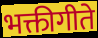
भक्तीगीते